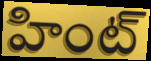
హింట్